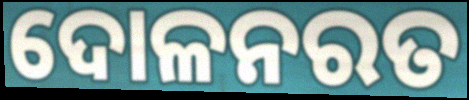
ଦୋଳନରତ